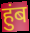
हुंब